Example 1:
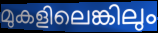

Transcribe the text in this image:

മുകളിലെങ്കിലും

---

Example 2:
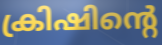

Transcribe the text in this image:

ക്രിഷിന്റെ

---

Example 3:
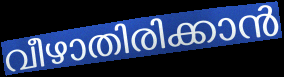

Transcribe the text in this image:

വീഴാതിരിക്കാൻ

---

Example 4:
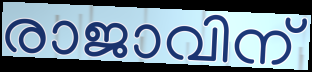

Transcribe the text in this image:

രാജാവിന്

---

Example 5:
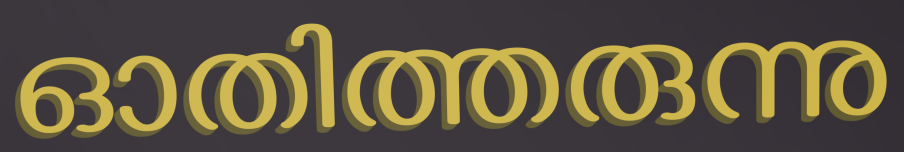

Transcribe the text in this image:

ഓതിത്തരുന്നു